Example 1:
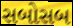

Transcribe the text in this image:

સબોસબ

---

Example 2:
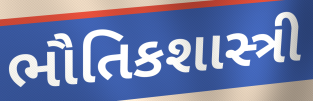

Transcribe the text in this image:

ભૌતિકશાસ્ત્રી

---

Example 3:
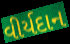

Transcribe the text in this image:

વીર્યદાન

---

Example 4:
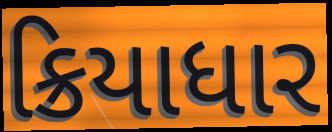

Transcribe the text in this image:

ક્રિયાધાર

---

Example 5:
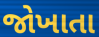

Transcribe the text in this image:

જોખાતા